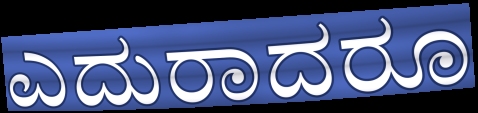
ಎದುರಾದರೂ